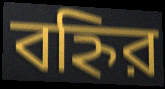
বহ্নির